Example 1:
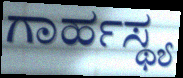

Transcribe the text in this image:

ಗಾರ್ಹಸ್ಥ್ಯ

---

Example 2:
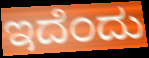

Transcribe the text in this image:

ಇದೆಂದು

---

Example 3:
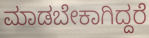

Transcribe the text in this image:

ಮಾಡಬೇಕಾಗಿದ್ದರೆ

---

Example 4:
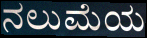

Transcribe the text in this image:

ನಲುಮೆಯ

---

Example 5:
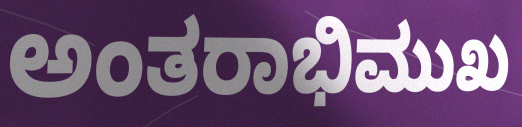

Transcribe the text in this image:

ಅಂತರಾಭಿಮುಖ